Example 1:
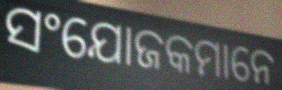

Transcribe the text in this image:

ସଂଯୋଜକମାନେ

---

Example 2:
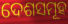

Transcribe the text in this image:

ଦେଶସମୂହ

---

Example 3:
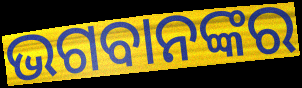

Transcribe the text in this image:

ଭଗବାନଙ୍କର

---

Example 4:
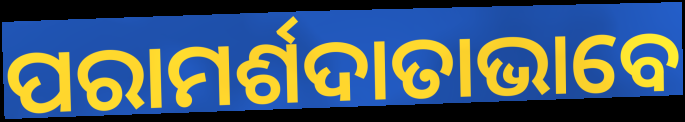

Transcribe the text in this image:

ପରାମର୍ଶଦାତାଭାବେ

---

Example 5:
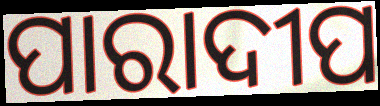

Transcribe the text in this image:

ପାରାଦୀପ